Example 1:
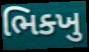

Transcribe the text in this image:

ભિક્ખુ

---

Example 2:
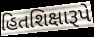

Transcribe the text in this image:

હિતશિક્ષારૂપે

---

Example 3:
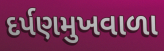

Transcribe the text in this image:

દર્પણમુખવાળા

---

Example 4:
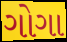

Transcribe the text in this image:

ગોગા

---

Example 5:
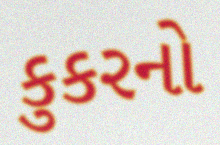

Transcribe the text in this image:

કુકરનો